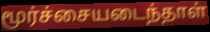
மூர்ச்சையடைந்தாள்